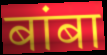
बांबा